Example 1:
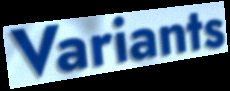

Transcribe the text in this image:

Variants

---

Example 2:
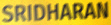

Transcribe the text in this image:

SRIDHARAN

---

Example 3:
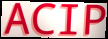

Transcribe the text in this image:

ACIP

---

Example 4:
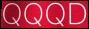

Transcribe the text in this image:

QQQD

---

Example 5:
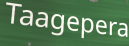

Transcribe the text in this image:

Taagepera